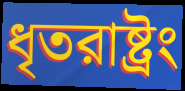
ধৃতরাষ্ট্রং